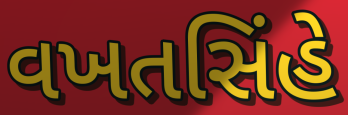
વખતસિંહે